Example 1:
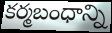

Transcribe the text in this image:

కర్మబంధాన్ని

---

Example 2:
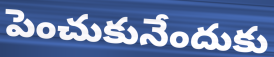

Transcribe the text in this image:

పెంచుకునేందుకు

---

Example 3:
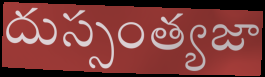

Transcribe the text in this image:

దుస్సంత్యజా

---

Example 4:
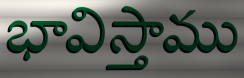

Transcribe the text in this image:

భావిస్తాము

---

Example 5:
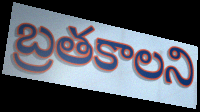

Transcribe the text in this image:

బ్రతకాలని